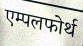
एम्पलफोर्थ